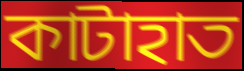
কাটাহাত